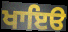
ਖਾਇੳ